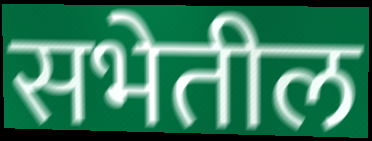
सभेतील